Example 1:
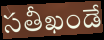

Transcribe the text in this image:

సతీఖండే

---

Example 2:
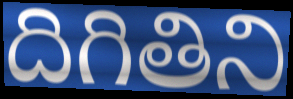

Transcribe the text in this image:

దిగితిని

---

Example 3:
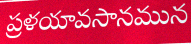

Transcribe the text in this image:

ప్రళయావసానమున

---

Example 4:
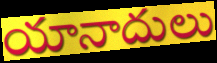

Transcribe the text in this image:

యానాదులు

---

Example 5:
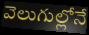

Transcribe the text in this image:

వెలుగుల్లోనే